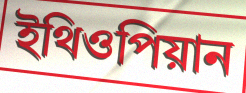
ইথিওপিয়ান